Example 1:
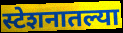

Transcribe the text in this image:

स्टेशनातल्या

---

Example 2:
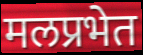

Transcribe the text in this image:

मलप्रभेत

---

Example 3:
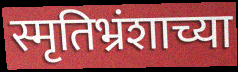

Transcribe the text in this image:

स्मृतिभ्रंशाच्या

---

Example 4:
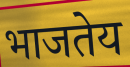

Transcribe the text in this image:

भाजतेय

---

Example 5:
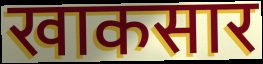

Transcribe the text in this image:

खाकसार